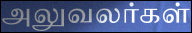
அலுவலர்கள்